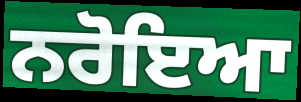
ਨਰੋਇਆ